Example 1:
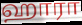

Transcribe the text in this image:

ஹாரா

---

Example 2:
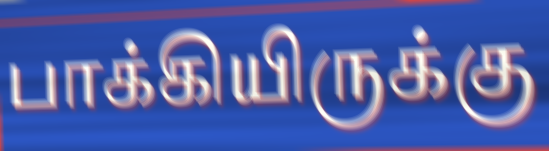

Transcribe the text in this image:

பாக்கியிருக்கு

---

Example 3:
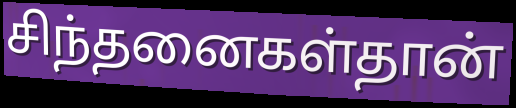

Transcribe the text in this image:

சிந்தனைகள்தான்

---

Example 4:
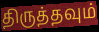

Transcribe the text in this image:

திருத்தவும்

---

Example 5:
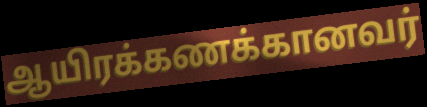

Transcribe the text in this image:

ஆயிரக்கணக்கானவர்